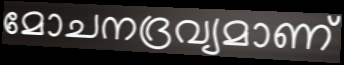
മോചനദ്രവ്യമാണ്